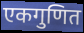
एकगुणित